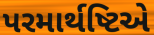
પરમાર્થષ્ટિએ